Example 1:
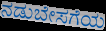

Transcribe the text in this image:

ನಡುಬೇಸಗೆಯ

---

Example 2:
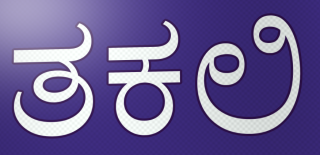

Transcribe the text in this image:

ತಕಲಿ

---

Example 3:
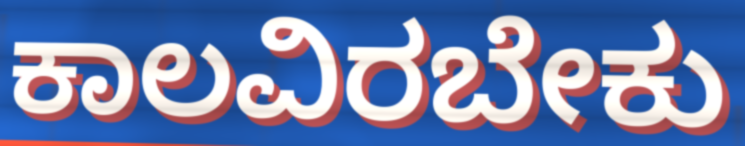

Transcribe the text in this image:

ಕಾಲವಿರಬೇಕು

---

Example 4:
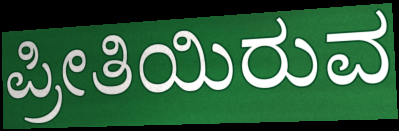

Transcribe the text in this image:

ಪ್ರೀತಿಯಿರುವ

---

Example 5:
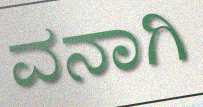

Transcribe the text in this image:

ವನಾಗಿ